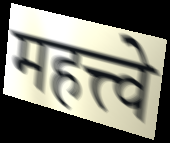
महत्त्वे